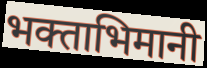
भक्ताभिमानी